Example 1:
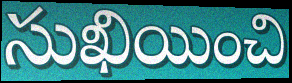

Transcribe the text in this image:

సుఖియించి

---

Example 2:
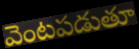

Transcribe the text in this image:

వెంటపడుతూ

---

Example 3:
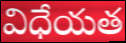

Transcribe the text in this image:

విధేయత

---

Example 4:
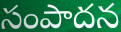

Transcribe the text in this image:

సంపాదన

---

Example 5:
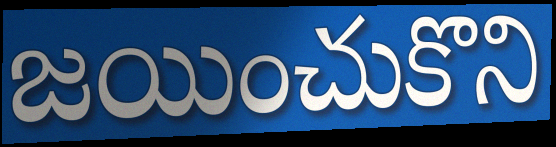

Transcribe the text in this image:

జయించుకొని